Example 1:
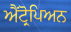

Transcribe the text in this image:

ਐਂਟ੍ਰੋਪਿਅਨ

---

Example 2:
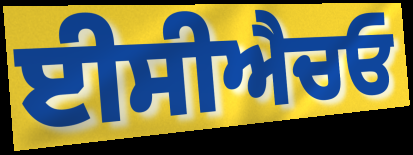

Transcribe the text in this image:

ਈਸੀਐਚਓ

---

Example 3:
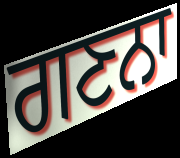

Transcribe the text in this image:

ਗਣਨਾ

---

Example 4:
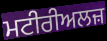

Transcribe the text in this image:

ਮਟੀਰੀਅਲਜ਼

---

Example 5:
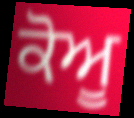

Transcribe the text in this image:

ਕੋਅੂ